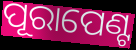
ପୂରାପେଣ୍ଟ